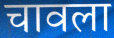
चावला